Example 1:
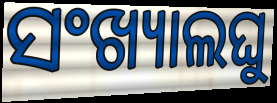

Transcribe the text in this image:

ସଂଖ୍ୟାଲଘୁ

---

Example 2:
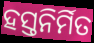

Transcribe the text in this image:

ହସ୍ତନିର୍ମିତ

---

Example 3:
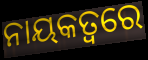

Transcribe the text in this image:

ନାୟକତ୍ବରେ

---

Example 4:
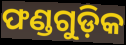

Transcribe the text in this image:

ଫଣ୍ଡଗୁଡ଼ିକ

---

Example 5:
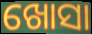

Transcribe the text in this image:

ଖୋସା